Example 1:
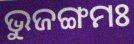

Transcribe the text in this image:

ଭୁଜଙ୍ଗମଃ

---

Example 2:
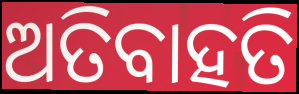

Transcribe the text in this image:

ଅତିବାହତି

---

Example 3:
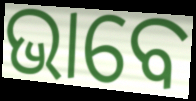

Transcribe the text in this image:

ଭାବେ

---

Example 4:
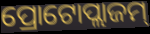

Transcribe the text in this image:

ପ୍ରୋଟୋପ୍ଲାଜମ୍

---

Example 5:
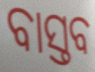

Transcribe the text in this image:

ବାସ୍ତବ